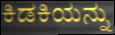
ಕಿಡಕಿಯನ್ನು